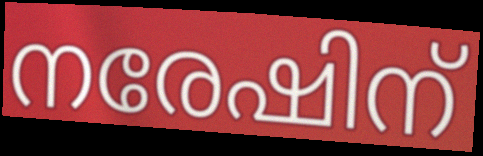
നരേഷിന്